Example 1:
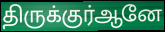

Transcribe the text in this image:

திருக்குர்ஆனே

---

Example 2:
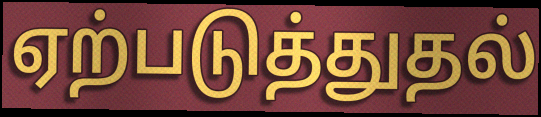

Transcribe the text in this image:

ஏற்படுத்துதல்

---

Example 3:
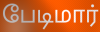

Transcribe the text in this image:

பேடிமார்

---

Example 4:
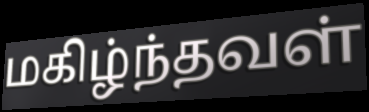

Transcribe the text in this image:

மகிழ்ந்தவள்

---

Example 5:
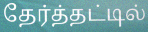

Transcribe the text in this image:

தேர்த்தட்டில்